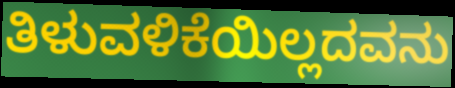
ತಿಳುವಳಿಕೆಯಿಲ್ಲದವನು